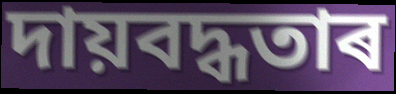
দায়বদ্ধতাৰ